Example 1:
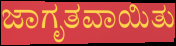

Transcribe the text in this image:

ಜಾಗೃತವಾಯಿತು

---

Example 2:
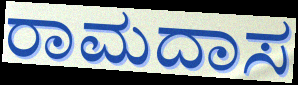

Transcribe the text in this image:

ರಾಮದಾಸ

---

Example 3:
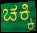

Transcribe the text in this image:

ಚಕ್ಕಿ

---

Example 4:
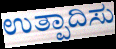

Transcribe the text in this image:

ಉತ್ಪಾದಿಸು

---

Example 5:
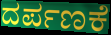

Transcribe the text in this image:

ದರ್ಪಣಕೆ